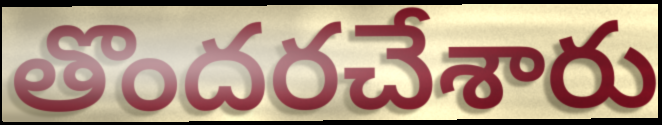
తొందరచేశారు